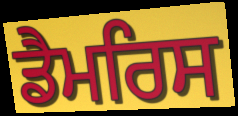
ਡੈਮਰਿਸ